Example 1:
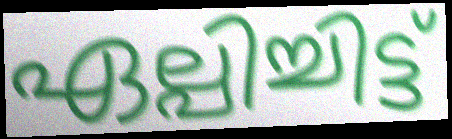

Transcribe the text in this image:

ഏല്പിച്ചിട്ട്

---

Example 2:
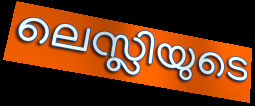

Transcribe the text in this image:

ലെസ്ലിയുടെ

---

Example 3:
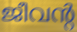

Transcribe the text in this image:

ജീവന്റ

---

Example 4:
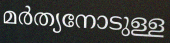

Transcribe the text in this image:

മർത്യനോടുള്ള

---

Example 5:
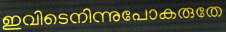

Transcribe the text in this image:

ഇവിടെനിന്നുപോകരുതേ